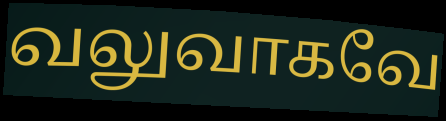
வலுவாகவே